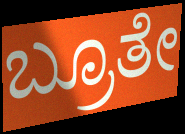
ಬ್ರೂತೇ